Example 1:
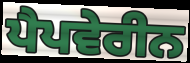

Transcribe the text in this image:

ਪੈਪਵੇਰੀਨ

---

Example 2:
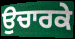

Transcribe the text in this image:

ਉਚਾਰਕੇ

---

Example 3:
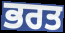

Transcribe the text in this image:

ਭਰਤ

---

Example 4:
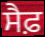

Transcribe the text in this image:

ਸੈਫ਼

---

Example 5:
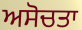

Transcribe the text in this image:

ਅਸੋਚਤਾ